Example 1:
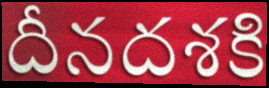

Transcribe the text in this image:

దీనదశకి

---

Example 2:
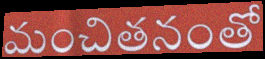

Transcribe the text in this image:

మంచితనంతో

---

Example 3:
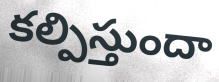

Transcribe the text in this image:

కల్పిస్తుందా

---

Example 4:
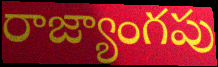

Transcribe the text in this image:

రాజ్యాంగపు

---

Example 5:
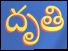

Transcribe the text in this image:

దృతి